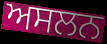
ਅਸਲਨ